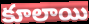
కూలాయి